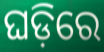
ଘଡ଼ିରେ